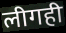
लीगही